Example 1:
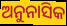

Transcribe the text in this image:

ଅନୁନାସିକ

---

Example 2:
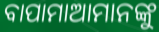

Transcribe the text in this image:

ବାପାମାଆମାନଙ୍କୁ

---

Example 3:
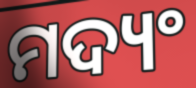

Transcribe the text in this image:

ମଦ୍ୟଂ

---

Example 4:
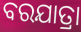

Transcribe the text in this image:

ବରଯାତ୍ରା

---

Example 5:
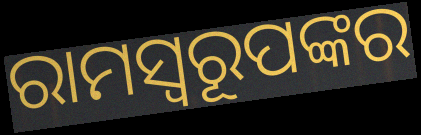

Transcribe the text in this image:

ରାମସ୍ୱରୂପଙ୍କର